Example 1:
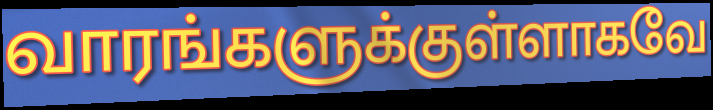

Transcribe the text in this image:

வாரங்களுக்குள்ளாகவே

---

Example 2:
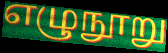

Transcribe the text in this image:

எழுநூறு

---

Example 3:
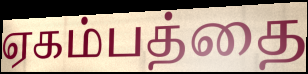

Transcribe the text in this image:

ஏகம்பத்தை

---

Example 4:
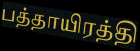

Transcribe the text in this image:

பத்தாயிரத்தி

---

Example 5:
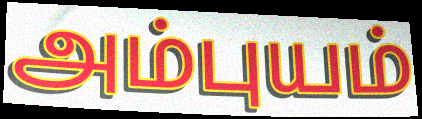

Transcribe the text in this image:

அம்புயம்